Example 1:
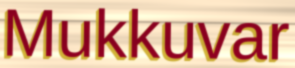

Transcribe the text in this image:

Mukkuvar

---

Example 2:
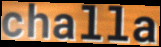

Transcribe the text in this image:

challa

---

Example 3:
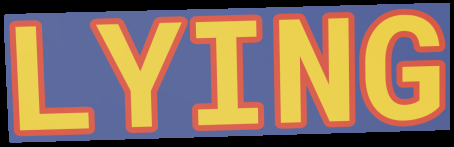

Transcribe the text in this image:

LYING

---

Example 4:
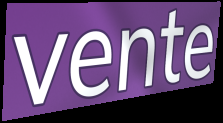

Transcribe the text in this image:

vente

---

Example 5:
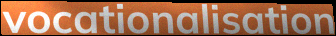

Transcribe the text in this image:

vocationalisation